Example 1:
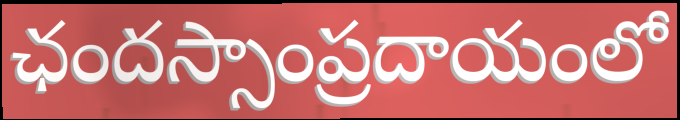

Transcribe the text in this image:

ఛందస్సాంప్రదాయంలో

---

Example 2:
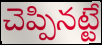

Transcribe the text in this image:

చెప్పినట్టే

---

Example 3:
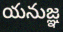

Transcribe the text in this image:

యనుజ్ఞ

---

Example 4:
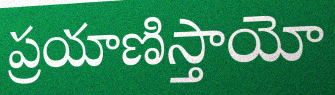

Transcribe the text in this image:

ప్రయాణిస్తాయో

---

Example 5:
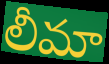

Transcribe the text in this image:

లీమా